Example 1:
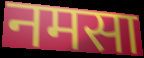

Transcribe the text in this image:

नमसा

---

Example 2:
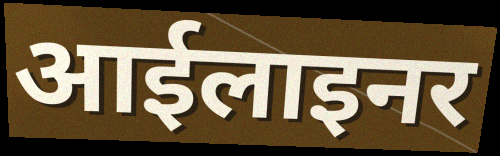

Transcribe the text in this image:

आईलाइनर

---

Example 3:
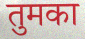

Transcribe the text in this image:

तुमका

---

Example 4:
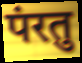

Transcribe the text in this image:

पंरतु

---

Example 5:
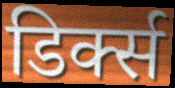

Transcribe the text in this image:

डिर्क्स